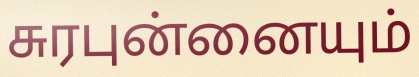
சுரபுன்னையும்